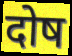
दोष